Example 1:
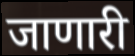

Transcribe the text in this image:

जाणारी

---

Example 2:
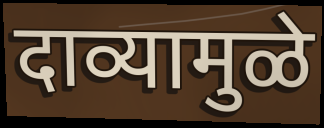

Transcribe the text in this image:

दाव्यामुळे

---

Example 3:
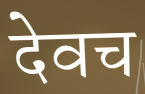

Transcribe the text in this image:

देवच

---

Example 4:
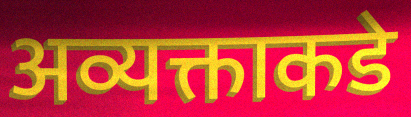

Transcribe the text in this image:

अव्यक्ताकडे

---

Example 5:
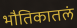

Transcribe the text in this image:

भौतिकातलं